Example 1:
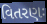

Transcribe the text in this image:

વિતરણઃ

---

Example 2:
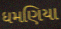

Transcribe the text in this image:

ધમણિયા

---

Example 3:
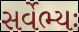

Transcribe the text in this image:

સર્વેભ્યઃ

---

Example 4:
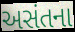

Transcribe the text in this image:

અસંતના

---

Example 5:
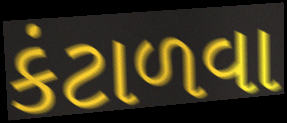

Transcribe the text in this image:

કંટાળવા